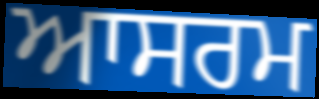
ਆਸਰਮ